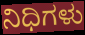
ನಿಧಿಗಳು